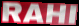
RAHI